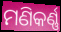
ମଣିକର୍ଣ୍ଣ